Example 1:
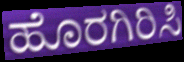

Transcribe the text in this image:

ಹೊರಗಿರಿಸಿ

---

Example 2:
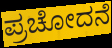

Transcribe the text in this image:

ಪ್ರಚೋದನೆ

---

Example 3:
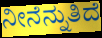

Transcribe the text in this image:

ನೀನೆನ್ನುತಿದೆ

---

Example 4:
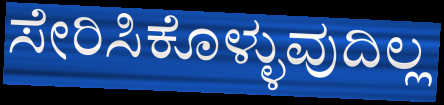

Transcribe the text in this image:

ಸೇರಿಸಿಕೊಳ್ಳುವುದಿಲ್ಲ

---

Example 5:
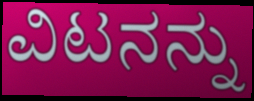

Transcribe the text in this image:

ವಿಟನನ್ನು